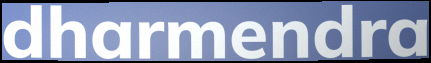
dharmendra